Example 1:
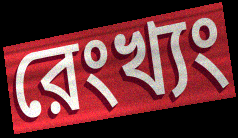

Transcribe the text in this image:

রেংখ্যং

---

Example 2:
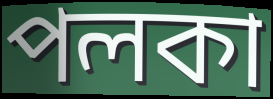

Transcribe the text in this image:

পলকা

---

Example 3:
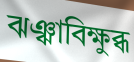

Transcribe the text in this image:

ঝঞ্ঝাবিক্ষুব্ধ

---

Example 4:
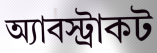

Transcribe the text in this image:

অ্যাবস্ট্রাকট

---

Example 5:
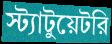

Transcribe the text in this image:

স্ট্যাটুয়েটরি